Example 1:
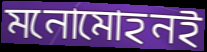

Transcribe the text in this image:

মনোমোহনই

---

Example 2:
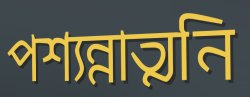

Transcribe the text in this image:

পশ্যন্নাত্মনি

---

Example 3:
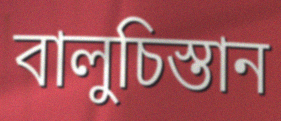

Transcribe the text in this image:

বালুচিস্তান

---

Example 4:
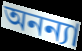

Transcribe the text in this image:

অনন্যা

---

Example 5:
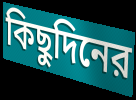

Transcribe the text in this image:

কিছুদিনের